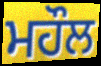
ਮਹੌਲ